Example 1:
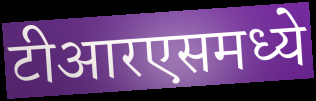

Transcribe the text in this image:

टीआरएसमध्ये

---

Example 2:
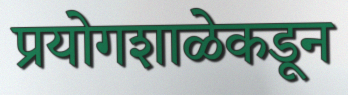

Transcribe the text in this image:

प्रयोगशाळेकडून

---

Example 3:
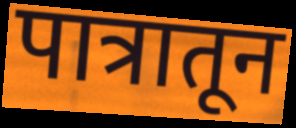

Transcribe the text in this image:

पात्रातून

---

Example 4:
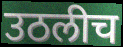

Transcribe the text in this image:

उठलीच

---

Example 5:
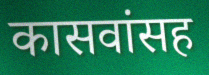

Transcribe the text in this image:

कासवांसह